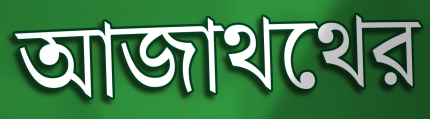
আজাথথের